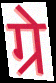
ग्रे